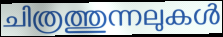
ചിത്രത്തുന്നലുകൾ